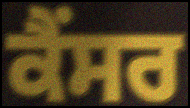
ਕੈਂਸਰ